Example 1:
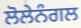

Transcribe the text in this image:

ਲੋਲੇਨੰਗਲ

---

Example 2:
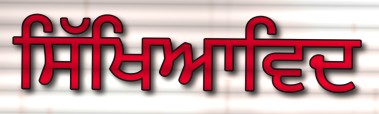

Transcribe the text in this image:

ਸਿੱਖਿਆਵਿਦ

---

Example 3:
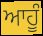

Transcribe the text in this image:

ਆਹੂੰ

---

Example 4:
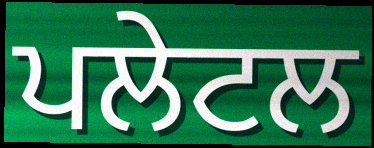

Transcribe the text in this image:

ਪਲੇਟਲ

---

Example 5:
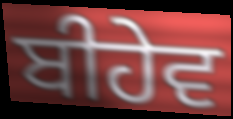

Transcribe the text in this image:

ਬੀਹੇਵ